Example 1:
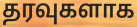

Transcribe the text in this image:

தரவுகளாக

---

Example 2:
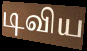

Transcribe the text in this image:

டிவிய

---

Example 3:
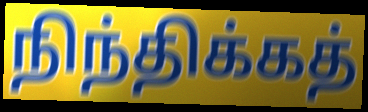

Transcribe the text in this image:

நிந்திக்கத்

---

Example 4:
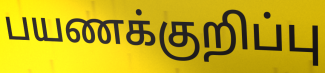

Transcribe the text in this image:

பயணக்குறிப்பு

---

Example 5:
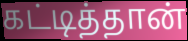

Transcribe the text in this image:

கட்டித்தான்